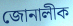
জোনালীক